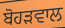
ਬੋਹੜਵਾਲ